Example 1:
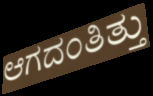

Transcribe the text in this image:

ಆಗದಂತಿತ್ತು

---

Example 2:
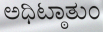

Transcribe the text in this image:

ಅಧಿಟ್ಠಾತುಂ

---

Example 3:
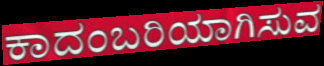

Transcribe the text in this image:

ಕಾದಂಬರಿಯಾಗಿಸುವ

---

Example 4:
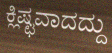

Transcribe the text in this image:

ಕ್ಲಿಷ್ಟವಾದದ್ದು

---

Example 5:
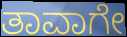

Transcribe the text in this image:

ತಾವಾಗೇ